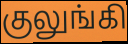
குலுங்கி